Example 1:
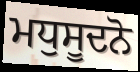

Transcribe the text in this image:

ਮਧੁਸੂਦਨੋ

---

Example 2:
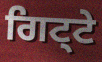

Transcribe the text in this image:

ਗਿਟ੍ਟੇ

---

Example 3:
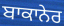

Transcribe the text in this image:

ਬਾਕਾਨੇਰ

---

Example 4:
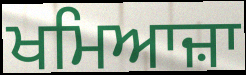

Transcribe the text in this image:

ਖਮਿਆਜ਼ਾ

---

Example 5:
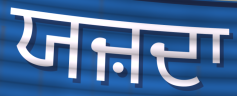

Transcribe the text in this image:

ਯਜ਼ਦਾ